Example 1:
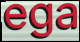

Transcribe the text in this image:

ega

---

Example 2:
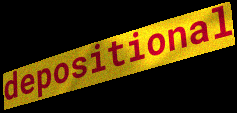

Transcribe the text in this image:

depositional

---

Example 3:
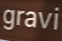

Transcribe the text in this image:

gravi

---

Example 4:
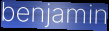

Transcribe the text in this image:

benjamin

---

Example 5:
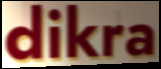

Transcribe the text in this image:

dikra